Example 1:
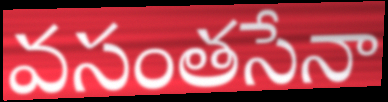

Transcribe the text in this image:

వసంతసేనా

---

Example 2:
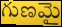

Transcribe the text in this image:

గుణమై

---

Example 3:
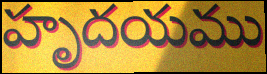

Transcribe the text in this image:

హృదయము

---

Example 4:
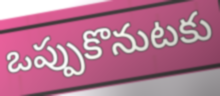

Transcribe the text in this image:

ఒప్పుకొనుటకు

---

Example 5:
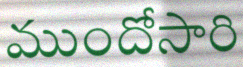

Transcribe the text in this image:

ముందోసారి